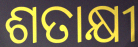
ଶତାକ୍ଷୀ